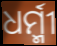
ଧର୍ମ୍ମୀ